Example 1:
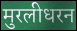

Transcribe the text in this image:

मुरलीधरन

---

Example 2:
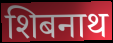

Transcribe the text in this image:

शिबनाथ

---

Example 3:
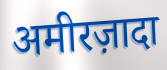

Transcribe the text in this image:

अमीरज़ादा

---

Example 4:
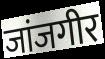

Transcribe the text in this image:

जांजगीर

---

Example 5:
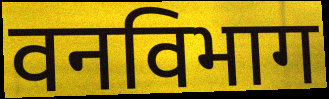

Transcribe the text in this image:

वनविभाग